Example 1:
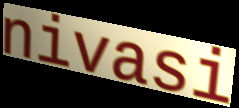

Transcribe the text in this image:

nivasi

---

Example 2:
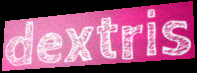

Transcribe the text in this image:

dextris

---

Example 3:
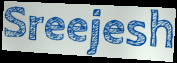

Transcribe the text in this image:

Sreejesh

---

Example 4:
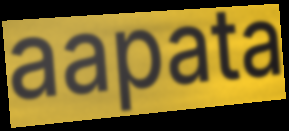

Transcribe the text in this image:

aapata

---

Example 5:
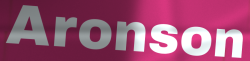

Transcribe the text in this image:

Aronson